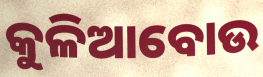
କୁଳିଆବୋଉ